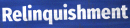
Relinquishment